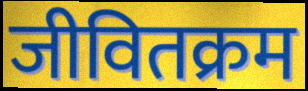
जीवितक्रम